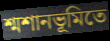
শ্মশানভূমিতে